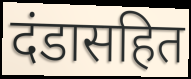
दंडासहित